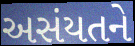
અસંયતને